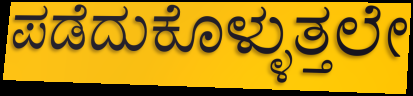
ಪಡೆದುಕೊಳ್ಳುತ್ತಲೇ